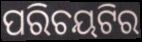
ପରିଚୟଟିର